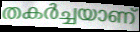
തകർച്ചയാണ്